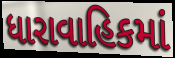
ધારાવાહિકમાં